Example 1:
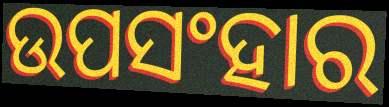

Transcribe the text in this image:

ଉପସଂହାର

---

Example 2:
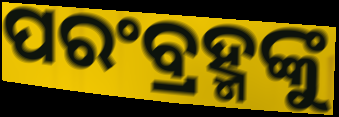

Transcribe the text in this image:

ପରଂବ୍ରହ୍ମଙ୍କୁ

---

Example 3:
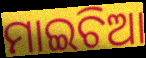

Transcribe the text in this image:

ମାଇଚିଆ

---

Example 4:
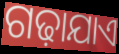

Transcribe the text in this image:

ଗଢ଼ାଯାଏ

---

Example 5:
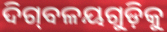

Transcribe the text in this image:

ଦିଗ୍‌ବଳୟଗୁଡ଼ିକୁ